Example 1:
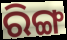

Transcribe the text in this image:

ରିଙ୍ଗ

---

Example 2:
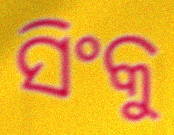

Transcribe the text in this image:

ସିଂକୁ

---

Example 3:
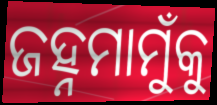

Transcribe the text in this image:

ଜହ୍ନମାମୁଁକୁ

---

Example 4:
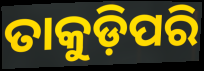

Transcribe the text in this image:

ତାକୁଡ଼ିପରି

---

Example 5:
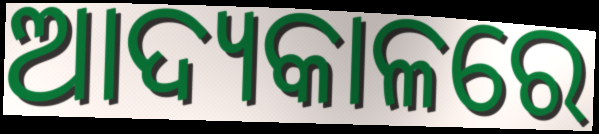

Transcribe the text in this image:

ଆଦ୍ୟକାଳରେ